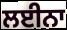
ਲਈਨਾ